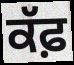
ਕੱਫ਼